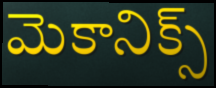
మెకానిక్స్